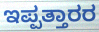
ಇಪ್ಪತ್ತಾರರ